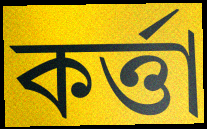
কৰ্ত্তা